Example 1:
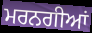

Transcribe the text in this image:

ਮਰਨਗੀਆਂ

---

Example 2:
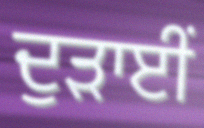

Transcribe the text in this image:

ਦੁੜਾਈਂ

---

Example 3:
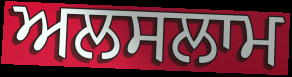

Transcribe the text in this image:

ਅਲਸਲਾਮ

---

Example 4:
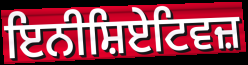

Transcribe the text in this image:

ਇਨੀਸ਼ਿਏਟਿਵਜ਼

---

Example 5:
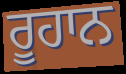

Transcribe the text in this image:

ਰੂਹਾਨ